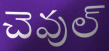
చెవుల్